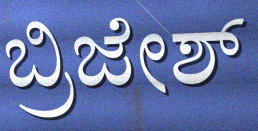
ಬ್ರಿಜೇಶ್